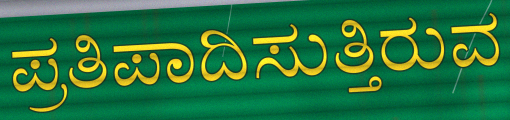
ಪ್ರತಿಪಾದಿಸುತ್ತಿರುವ